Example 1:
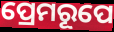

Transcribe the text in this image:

ପ୍ରେମରୂପେ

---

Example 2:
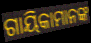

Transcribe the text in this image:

ଗାୟିକାମାନଙ୍କ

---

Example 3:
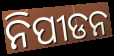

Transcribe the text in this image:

ନିପୀଡନ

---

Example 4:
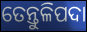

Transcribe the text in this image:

ତେନ୍ତୁଳିପଦା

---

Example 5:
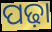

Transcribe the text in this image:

ପଢ଼ା